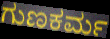
ಗುಣಕರ್ಮ